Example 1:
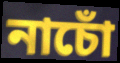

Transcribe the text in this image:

নাচোঁ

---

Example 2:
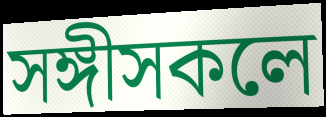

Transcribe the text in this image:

সঙ্গীসকলে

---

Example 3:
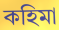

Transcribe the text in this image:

কহিমা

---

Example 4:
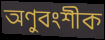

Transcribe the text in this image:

অণুবংশীক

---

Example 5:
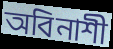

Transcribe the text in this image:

অবিনাশী